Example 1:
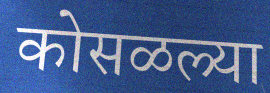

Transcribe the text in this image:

कोसळल्या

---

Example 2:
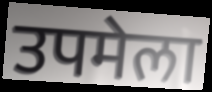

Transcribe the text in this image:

उपमेला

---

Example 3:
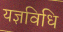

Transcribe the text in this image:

यज्ञविधि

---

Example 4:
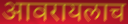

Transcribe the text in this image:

आवरायलाच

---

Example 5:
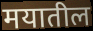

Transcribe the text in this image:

मयातील